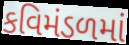
કવિમંડળમાં